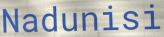
Nadunisi